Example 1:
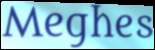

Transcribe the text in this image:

Meghes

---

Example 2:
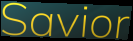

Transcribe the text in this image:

Savior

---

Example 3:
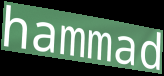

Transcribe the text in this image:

hammad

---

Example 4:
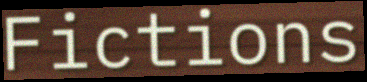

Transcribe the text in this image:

Fictions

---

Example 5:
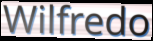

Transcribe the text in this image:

Wilfredo